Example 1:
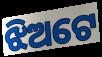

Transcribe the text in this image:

ଝିଅଟେ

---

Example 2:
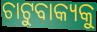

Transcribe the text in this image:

ଚାଟୁବାକ୍ୟକୁ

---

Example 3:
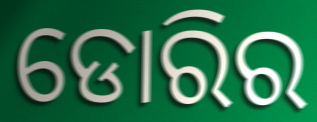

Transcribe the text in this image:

ଡୋରିର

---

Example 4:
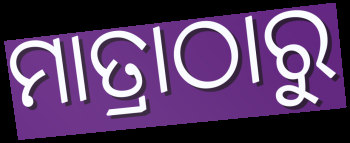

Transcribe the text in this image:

ମାତ୍ରାଠାରୁ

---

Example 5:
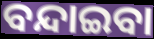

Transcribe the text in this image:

ବନ୍ଦାଇବା